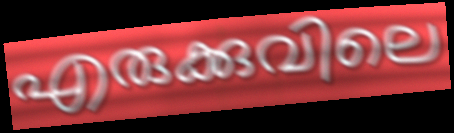
എരുക്കുവിലെ